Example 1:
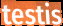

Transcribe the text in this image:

testis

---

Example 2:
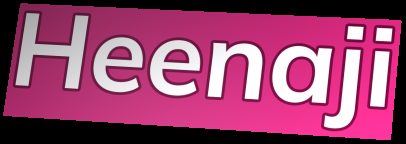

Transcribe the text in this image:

Heenaji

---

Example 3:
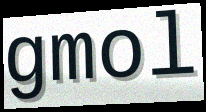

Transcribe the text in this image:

gmol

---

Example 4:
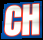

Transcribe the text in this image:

CH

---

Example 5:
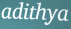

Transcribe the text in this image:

adithya